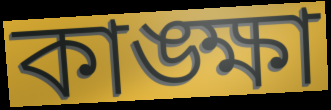
কাঙ্ক্ষা